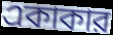
একাকার